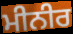
ਮੀਨੀਰ